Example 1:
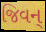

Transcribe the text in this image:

જિવન્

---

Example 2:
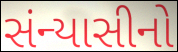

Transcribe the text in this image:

સંન્યાસીનો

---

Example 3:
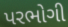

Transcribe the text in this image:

પરભોગી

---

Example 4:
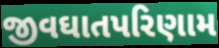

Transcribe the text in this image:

જીવઘાતપરિણામ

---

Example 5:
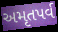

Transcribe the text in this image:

અમૃતપર્વ